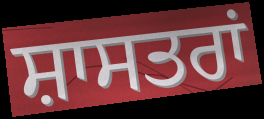
ਸ਼ਾਸਤਰਾਂ